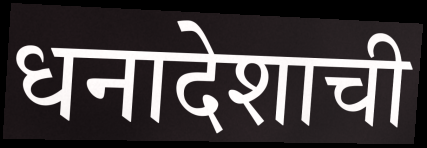
धनादेशाची